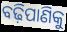
ବଢ଼ିପାଣିକୁ